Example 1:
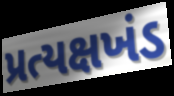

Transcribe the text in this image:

પ્રત્યક્ષખંડ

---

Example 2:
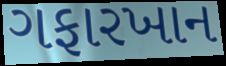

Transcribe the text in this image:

ગફારખાન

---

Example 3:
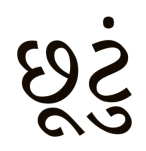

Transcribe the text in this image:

છૂટું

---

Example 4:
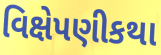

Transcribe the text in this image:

વિક્ષેપણીકથા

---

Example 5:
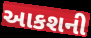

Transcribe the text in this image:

આકશની